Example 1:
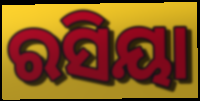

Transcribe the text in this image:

ରସିୟା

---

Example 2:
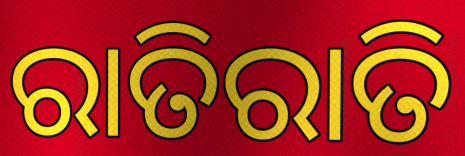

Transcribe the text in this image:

ରାତିରାତି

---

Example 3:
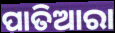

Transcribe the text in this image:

ପାତିଆରା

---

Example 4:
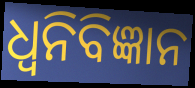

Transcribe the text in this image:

ଧ୍ୱନିବିଜ୍ଞାନ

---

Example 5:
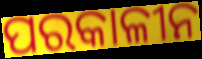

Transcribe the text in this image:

ପରକାଳୀନ